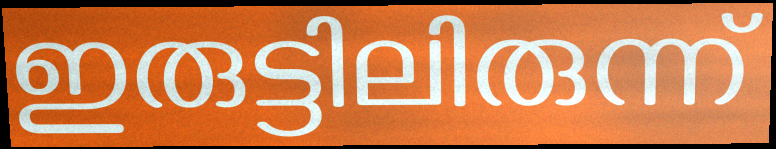
ഇരുട്ടിലിരുന്ന്